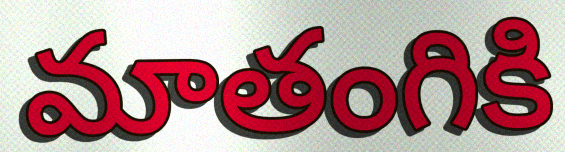
మాతంగికి